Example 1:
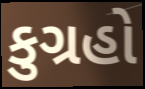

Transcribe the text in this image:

કુગ્રહો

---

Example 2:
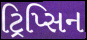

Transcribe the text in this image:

ટ્રિપ્સિન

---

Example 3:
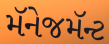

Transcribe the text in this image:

મૅનેજમૅન્ટ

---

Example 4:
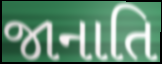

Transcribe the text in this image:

જાનાતિ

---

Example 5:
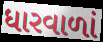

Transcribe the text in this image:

ધારવાળાં